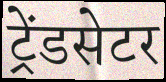
ट्रेंडसेटर